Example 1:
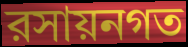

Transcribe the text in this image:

রসায়নগত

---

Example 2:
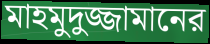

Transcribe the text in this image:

মাহমুদুজ্জামানের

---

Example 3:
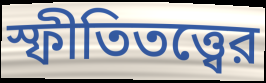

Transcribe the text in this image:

স্ফীতিতত্ত্বের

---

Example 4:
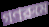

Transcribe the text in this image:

গণরুমে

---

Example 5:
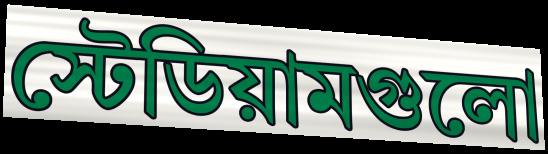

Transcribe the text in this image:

স্টেডিয়ামগুলো